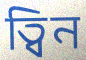
ত্বিন